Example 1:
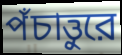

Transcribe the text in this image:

পঁচাত্তুরে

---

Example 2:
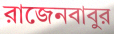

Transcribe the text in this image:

রাজেনবাবুর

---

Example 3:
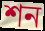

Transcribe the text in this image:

শন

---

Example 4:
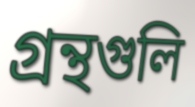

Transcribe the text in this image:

গ্রন্থগুলি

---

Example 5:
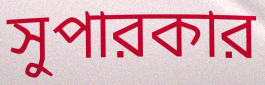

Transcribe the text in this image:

সুপারকার